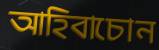
আহিবাচোন